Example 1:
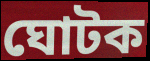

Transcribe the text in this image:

ঘোটক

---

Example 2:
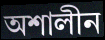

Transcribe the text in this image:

অশালীন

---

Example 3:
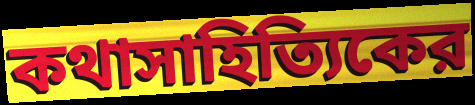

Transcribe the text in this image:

কথাসাহিত্যিকের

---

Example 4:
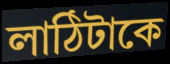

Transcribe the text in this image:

লাঠিটাকে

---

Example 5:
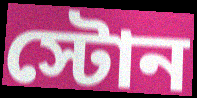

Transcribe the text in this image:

স্টোন